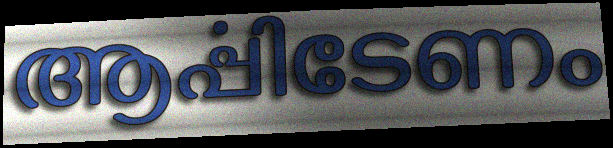
ആൎപ്പിടേണം